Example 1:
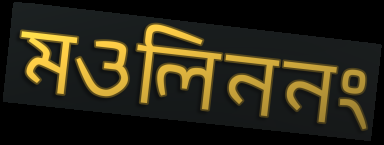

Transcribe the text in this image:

মওলিননং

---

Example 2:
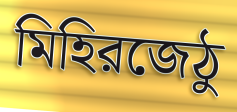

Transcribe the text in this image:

মিহিরজেঠু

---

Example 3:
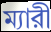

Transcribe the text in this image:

ম্যারী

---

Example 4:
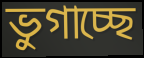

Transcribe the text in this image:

ভুগাচ্ছে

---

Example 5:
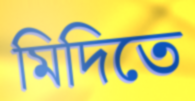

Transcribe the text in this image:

মিদিতে